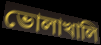
ভোলাখালি